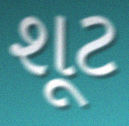
શૂટ